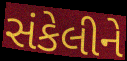
સંકેલીને